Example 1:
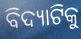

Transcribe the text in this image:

ବିଦ୍ୟାଟିକୁ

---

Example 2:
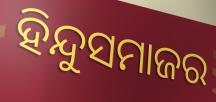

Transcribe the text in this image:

ହିନ୍ଦୁସମାଜର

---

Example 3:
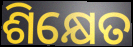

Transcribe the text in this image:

ଶିକ୍ଷେତ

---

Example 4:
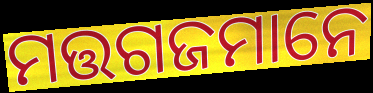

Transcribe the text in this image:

ମତ୍ତଗଜମାନେ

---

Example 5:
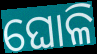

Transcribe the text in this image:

ଘୋଳି